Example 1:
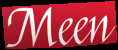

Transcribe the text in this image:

Meen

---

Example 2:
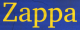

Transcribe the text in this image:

Zappa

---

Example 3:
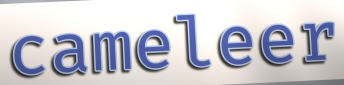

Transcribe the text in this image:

cameleer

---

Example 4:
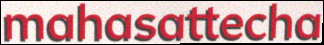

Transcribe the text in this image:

mahasattecha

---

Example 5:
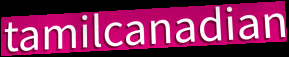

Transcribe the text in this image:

tamilcanadian